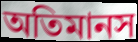
অতিমানস